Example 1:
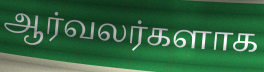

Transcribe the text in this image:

ஆர்வலர்களாக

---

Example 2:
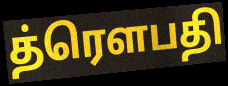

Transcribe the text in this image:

த்ரௌபதி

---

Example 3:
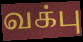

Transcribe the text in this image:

வக்பு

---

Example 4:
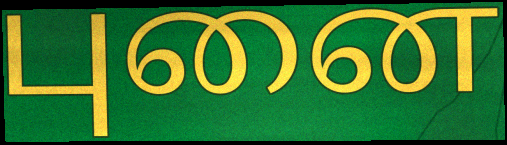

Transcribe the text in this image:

புனை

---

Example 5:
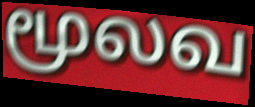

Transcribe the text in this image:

மூலவ